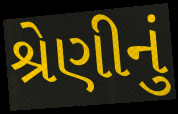
શ્રેણીનું